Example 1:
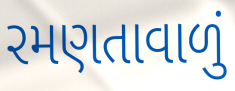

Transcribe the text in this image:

રમણતાવાળું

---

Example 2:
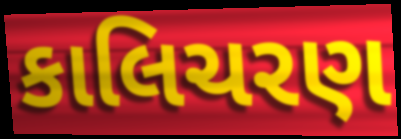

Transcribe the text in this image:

કાલિચરણ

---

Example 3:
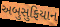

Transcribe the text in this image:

અબુસુફિયાન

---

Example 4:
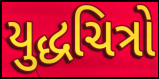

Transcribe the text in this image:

યુદ્ધચિત્રો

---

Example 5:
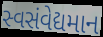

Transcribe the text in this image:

સ્વસંવેદ્યમાન